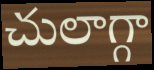
చులాగ్గా